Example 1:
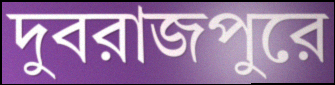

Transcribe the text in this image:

দুবরাজপুরে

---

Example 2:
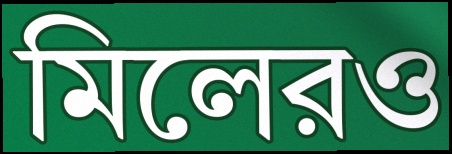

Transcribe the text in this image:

মিলেরও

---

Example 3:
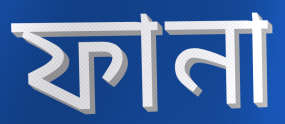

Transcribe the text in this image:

ফানা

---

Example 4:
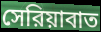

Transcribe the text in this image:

সেরিয়াবাত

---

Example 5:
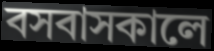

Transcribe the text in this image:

বসবাসকালে